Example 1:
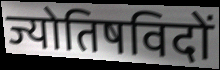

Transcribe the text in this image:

ज्योतिषविदों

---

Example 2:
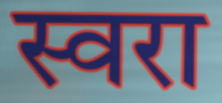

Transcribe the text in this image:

स्‍वरा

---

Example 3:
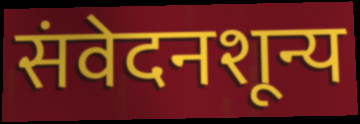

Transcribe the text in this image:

संवेदनशून्य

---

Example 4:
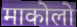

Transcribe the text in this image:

माकोलो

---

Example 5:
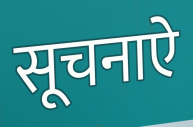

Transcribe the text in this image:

सूचनाऐ